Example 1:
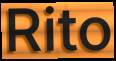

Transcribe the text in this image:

Rito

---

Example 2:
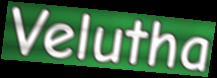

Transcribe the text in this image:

Velutha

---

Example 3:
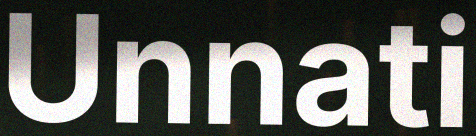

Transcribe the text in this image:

Unnati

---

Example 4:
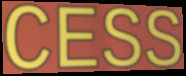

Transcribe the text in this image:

CESS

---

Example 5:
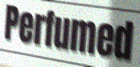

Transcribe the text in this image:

Perfumed